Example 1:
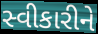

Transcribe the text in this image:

સ્વીકારીને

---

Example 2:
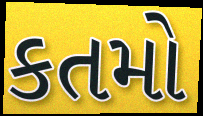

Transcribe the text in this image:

કતમો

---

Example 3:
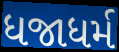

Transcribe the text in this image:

ધજાધર્મ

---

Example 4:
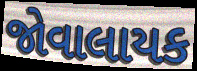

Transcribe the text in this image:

જોવાલાયક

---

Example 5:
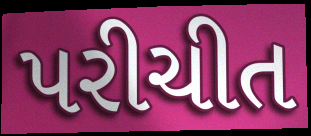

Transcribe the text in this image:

પરીચીત